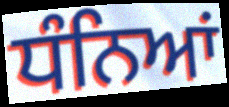
ਧੰਨਿਆਂ